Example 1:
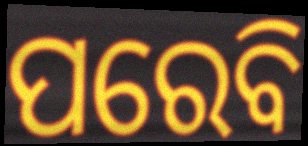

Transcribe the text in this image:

ପରେବି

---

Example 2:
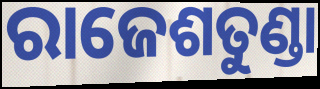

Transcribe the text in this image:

ରାଜେଶତୁଣ୍ଡା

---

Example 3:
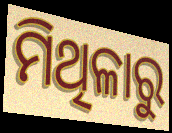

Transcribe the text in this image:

ମିଥିଳାରୁ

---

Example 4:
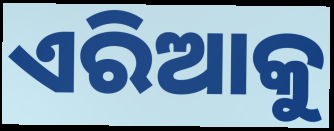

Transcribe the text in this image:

ଏରିଆକୁ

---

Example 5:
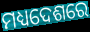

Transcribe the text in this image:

ମଧ୍ୟଦେଶରେ